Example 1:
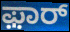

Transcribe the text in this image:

ಫ಼ಾರ್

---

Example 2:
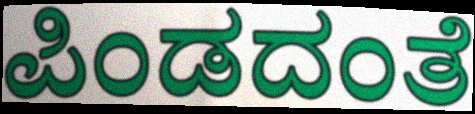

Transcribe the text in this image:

ಪಿಂಡದಂತೆ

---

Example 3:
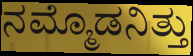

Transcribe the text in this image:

ನಮ್ಮೊಡನಿತ್ತು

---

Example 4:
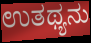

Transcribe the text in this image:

ಉತಥ್ಯನು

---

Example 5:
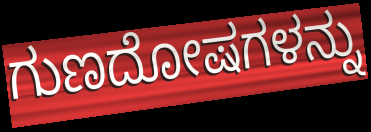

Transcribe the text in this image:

ಗುಣದೋಷಗಳನ್ನು